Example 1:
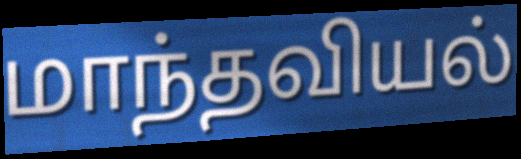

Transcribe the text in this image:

மாந்தவியல்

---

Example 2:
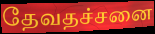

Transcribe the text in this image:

தேவதச்சனை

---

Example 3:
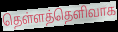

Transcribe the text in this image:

தெள்ளத்தெளிவாக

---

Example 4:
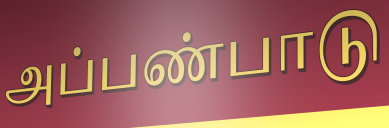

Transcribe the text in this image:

அப்பண்பாடு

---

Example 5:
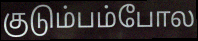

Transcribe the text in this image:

குடும்பம்போல